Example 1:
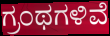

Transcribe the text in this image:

ಗ್ರಂಥಗಳಿವೆ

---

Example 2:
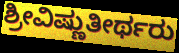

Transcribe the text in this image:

ಶ್ರೀವಿಷ್ಣುತೀರ್ಥರು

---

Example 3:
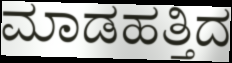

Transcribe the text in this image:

ಮಾಡಹತ್ತಿದ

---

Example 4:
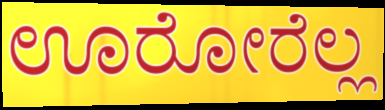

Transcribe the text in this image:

ಊರೋರೆಲ್ಲ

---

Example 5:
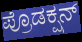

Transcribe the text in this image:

ಪ್ರೊಡಕ್ಷನ್